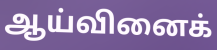
ஆய்வினைக்